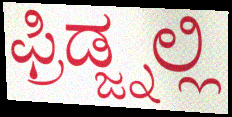
ಫ್ರಿಡ್ಜ್ನಲ್ಲಿ